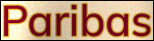
Paribas